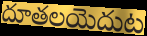
దూతలయెదుట